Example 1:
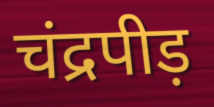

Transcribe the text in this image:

चंद्रपीड़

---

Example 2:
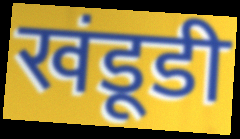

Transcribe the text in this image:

खंडूडी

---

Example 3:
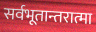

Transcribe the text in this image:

सर्वभूतान्तरात्मा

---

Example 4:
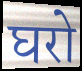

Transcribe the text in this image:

घरो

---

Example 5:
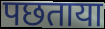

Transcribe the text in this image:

पछताया